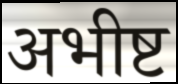
अभीष्ट